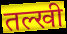
तल्‍खी